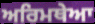
ਅਰਿਮਥੇਆ